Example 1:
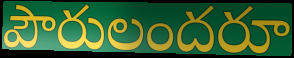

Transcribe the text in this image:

పౌరులందరూ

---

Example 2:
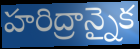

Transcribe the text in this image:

హరిద్రాన్నైక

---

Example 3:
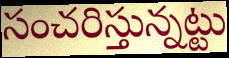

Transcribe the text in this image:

సంచరిస్తున్నట్టు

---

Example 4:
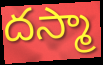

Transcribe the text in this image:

దస్మా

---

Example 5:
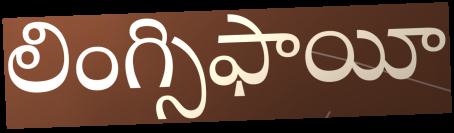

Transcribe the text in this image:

లింగ్సిఫాయీ